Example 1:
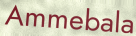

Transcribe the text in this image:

Ammebala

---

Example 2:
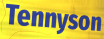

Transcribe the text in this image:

Tennyson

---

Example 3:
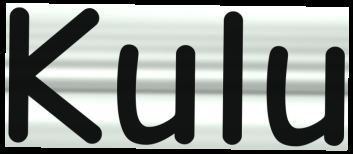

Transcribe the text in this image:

Kulu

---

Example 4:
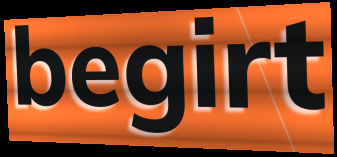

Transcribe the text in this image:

begirt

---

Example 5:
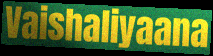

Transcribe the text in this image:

Vaishaliyaana